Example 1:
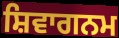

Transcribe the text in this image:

ਸ਼ਿਵਾਗਨਮ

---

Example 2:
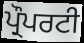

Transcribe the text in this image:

ਪ੍ਰੌਪਰਟੀ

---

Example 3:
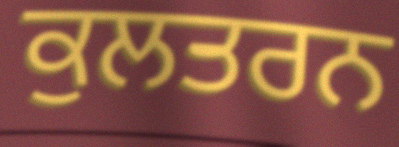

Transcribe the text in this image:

ਕੁਲਤਰਨ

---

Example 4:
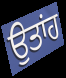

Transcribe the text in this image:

ਉਤਾਂਹ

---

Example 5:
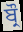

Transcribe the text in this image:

ਬ੍ਰੌ